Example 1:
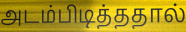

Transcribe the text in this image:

அடம்பிடித்ததால்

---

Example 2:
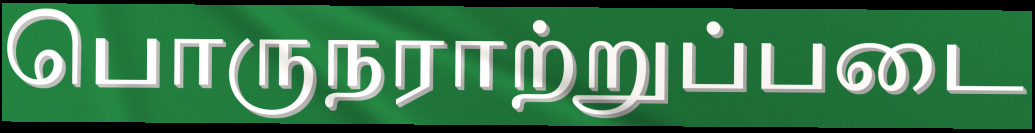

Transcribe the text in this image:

பொருநராற்றுப்படை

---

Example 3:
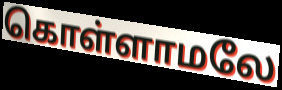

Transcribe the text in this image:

கொள்ளாமலே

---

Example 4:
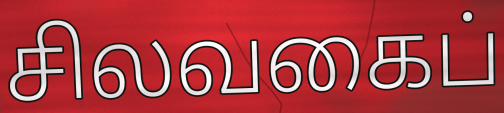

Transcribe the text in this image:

சிலவகைப்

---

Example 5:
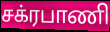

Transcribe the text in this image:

சக்ரபாணி